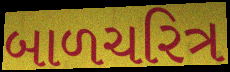
બાળચરિત્ર